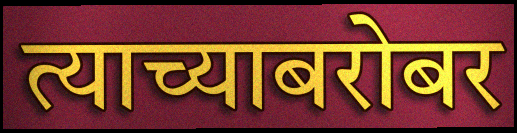
त्याच्याबरोबर